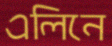
এলিনে